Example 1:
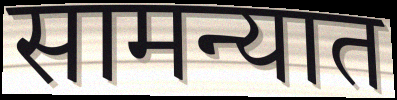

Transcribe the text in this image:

सामन्यात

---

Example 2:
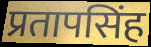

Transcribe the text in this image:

प्रतापसिंह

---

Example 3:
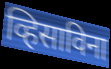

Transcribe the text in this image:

व्हिसाविना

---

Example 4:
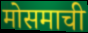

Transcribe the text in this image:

मोसमाची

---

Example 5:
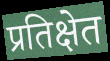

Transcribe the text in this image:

प्रतिक्षेत